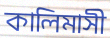
কালিমাসী